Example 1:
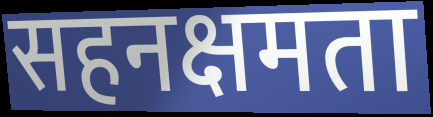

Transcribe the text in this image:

सहनक्षमता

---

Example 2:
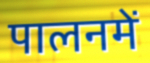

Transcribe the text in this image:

पालनमें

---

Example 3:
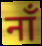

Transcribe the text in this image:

नाँ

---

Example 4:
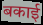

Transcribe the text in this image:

बकाई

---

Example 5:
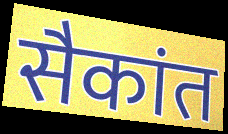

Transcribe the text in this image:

सैकांत